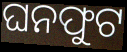
ଘନଫୁଟ